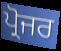
ਪ੍ਰੋਜਰ